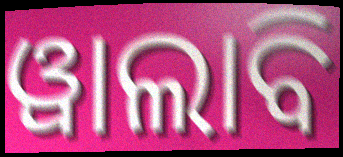
ୱାଲାବି